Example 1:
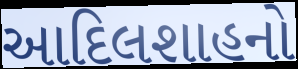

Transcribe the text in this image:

આદિલશાહનો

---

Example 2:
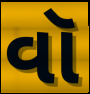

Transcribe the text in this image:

વૉ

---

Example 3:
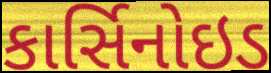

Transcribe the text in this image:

કાર્સિનોઇડ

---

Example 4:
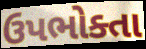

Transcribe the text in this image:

ઉપભોક્તા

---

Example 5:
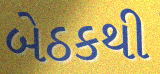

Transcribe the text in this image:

બેઠકથી